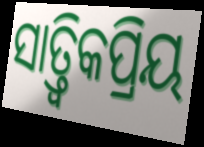
ସାତ୍ତ୍ଵିକପ୍ରିୟ